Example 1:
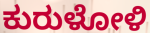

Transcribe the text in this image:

ಕುರುಳೋಳಿ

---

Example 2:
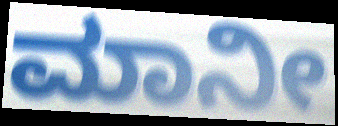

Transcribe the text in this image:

ಮಾನೀ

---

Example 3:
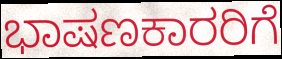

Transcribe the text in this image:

ಭಾಷಣಕಾರರಿಗೆ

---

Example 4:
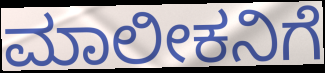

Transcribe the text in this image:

ಮಾಲೀಕನಿಗೆ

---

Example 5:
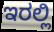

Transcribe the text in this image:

ಇರಲ್ಲಿ